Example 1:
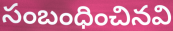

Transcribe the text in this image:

సంబంధించినవి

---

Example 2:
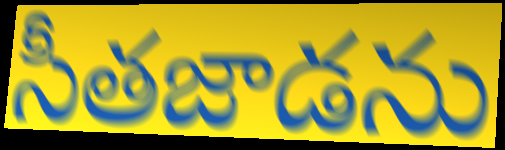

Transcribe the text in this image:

సీతజాడను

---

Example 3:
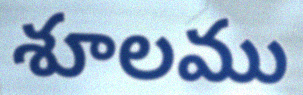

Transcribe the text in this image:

శూలము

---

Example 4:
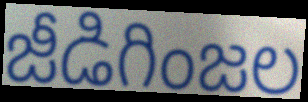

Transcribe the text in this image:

జీడిగింజల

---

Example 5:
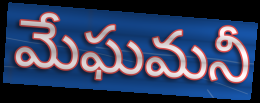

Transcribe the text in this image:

మేఘమనీ